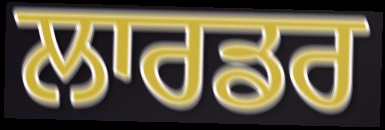
ਲਾਰਡਰ